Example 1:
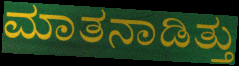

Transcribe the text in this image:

ಮಾತನಾಡಿತ್ತು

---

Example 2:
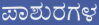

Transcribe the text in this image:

ಪಾಶುರಗಳ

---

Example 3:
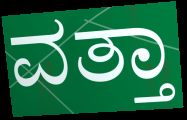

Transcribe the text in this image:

ವತ್ತಾ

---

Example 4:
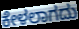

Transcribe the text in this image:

ಕೇಳಲಾಗದು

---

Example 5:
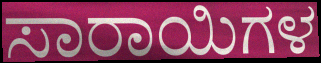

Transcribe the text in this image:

ಸಾರಾಯಿಗಳ